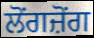
ਲੋਂਗਜ਼ੋਂਗ